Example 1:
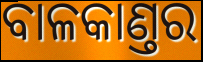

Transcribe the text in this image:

ବାଳକାଣ୍ତର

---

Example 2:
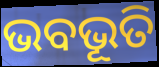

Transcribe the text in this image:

ଭବଭୂତି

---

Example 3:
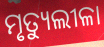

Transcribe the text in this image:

ମୃତ୍ୟୁଲୀଳା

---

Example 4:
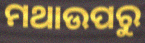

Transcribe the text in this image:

ମଥାଉପରୁ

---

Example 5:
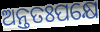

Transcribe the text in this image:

ଅନ୍ତତଃପକ୍ଷେ